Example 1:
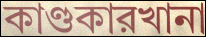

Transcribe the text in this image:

কাণ্ডকারখানা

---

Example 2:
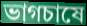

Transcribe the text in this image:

ভাগচাষে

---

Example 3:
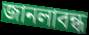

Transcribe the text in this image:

জানলাবন্ধ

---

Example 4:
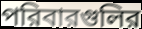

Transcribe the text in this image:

পরিবারগুলির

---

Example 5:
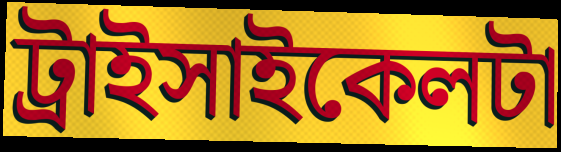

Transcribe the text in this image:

ট্রাইসাইকেলটা